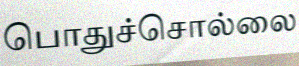
பொதுச்சொல்லை